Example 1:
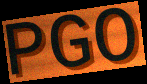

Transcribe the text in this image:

PGO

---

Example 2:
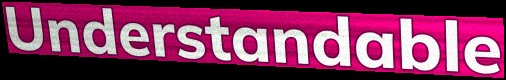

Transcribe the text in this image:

Understandable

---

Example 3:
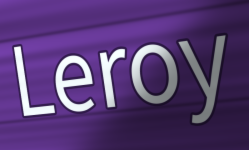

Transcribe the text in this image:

Leroy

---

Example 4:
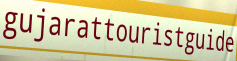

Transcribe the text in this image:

gujarattouristguide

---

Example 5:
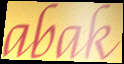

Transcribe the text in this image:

abak